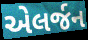
એલર્જન